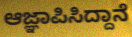
ಆಜ್ಞಾಪಿಸಿದ್ದಾನೆ